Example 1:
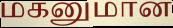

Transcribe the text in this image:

மகனுமான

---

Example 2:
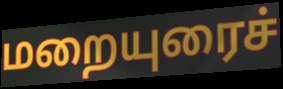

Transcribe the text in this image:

மறையுரைச்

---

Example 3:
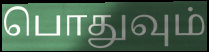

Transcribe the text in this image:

பொதுவும்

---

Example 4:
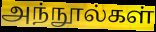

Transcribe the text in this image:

அந்நூல்கள்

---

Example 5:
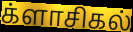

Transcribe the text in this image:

க்ளாசிகல்